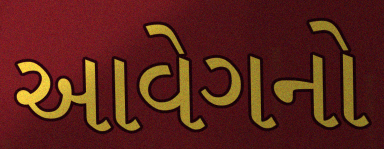
આવેગનો